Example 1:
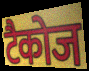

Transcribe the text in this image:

टैकोज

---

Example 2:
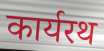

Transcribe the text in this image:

कार्यरथ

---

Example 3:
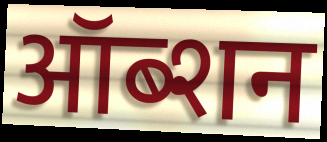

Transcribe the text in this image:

ऑब्शन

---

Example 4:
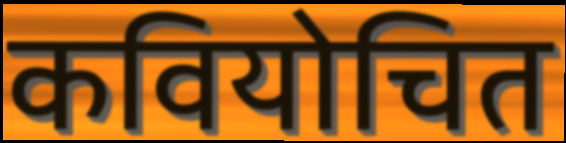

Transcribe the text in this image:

कवियोचित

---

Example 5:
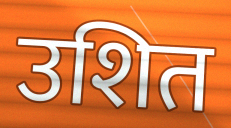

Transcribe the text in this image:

उशित